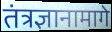
तंत्रज्ञानामागे